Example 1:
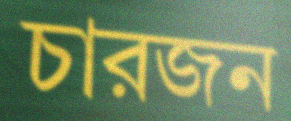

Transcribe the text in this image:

চারজন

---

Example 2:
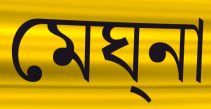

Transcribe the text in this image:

মেঘ্‌না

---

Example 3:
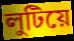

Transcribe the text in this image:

লুটিয়ে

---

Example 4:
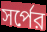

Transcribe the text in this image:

সর্পের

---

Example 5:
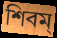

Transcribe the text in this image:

শিবম্